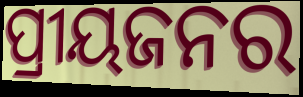
ପ୍ରୀୟଜନର